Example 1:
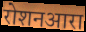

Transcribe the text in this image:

रोशनआरा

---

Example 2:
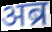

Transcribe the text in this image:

अब्र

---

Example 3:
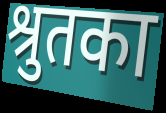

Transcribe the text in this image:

श्रुतका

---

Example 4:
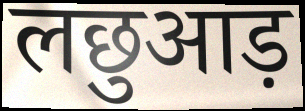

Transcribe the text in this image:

लछुआड़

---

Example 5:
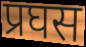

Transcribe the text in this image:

प्रघस